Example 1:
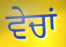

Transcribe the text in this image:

ਵੇਚਾਂ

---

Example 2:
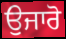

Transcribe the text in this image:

ਉਜਾਰੋ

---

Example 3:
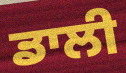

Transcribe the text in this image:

ਡਾਲੀ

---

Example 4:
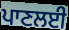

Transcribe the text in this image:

ਪਾਣਲਈ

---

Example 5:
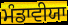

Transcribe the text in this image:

ਮੰਡਾਵੀਯਾ